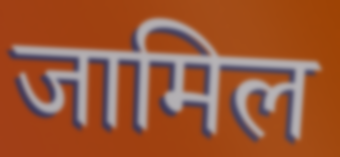
जामिल